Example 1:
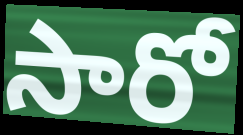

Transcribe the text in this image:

సారో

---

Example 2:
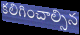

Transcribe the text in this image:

కలిగించాల్సిన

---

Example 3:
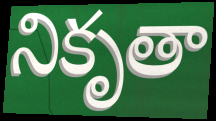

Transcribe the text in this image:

నికృతా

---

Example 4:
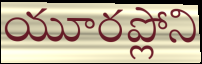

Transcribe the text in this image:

యూరప్లోని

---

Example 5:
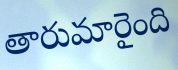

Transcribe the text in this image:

తారుమారైంది